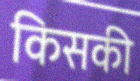
किसकी